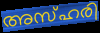
അസ്ഹരി